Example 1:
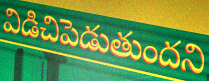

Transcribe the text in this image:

విడిచిపెడుతుందని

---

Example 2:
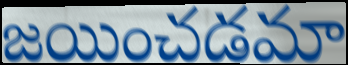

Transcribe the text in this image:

జయించడమా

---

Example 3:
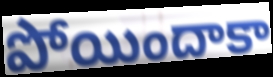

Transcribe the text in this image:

పోయిందాకా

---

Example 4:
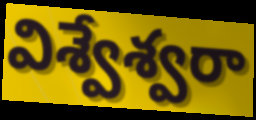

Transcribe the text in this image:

విశ్వేశ్వరా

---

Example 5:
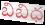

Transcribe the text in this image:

బిబిధ